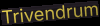
Trivendrum